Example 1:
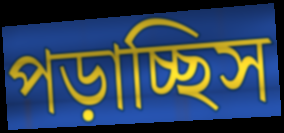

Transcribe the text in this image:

পড়াচ্ছিস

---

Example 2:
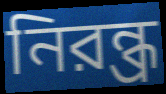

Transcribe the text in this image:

নিরন্ধ্র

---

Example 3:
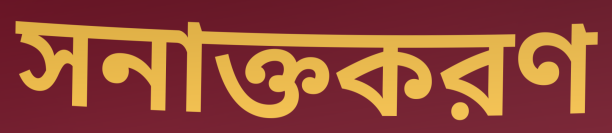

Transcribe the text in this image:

সনাক্তকরণ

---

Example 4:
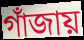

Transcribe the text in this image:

গাঁজায়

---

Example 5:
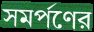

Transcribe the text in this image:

সমর্পণের